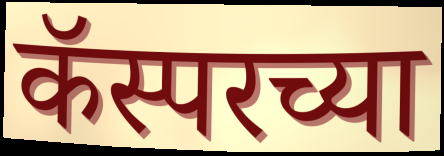
कॅस्परच्या